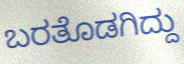
ಬರತೊಡಗಿದ್ದು